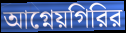
আগ্নেয়গিরির